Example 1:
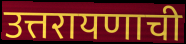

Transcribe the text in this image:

उत्तरायणाची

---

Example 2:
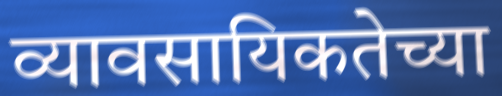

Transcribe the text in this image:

व्यावसायिकतेच्या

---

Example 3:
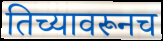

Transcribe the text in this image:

तिच्यावरूनच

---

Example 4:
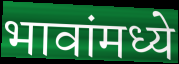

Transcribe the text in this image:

भावांमध्ये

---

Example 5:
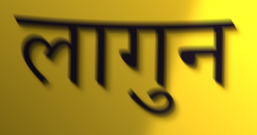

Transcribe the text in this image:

लागुन